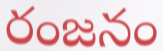
రంజనం